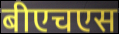
बीएचएस